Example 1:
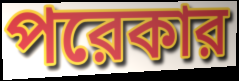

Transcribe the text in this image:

পরেকার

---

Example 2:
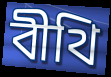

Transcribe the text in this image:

বীথি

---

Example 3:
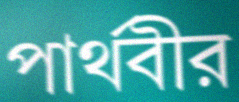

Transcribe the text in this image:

পার্থবীর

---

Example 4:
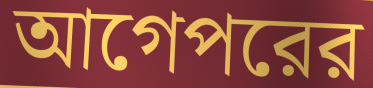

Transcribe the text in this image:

আগেপরের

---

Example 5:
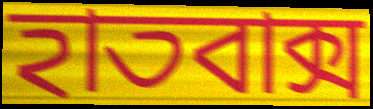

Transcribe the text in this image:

হাতবাক্স